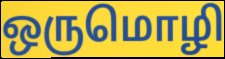
ஒருமொழி